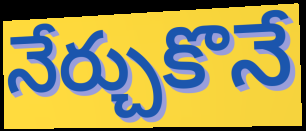
నేర్చుకొనే